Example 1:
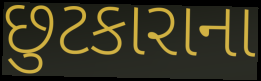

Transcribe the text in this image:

છુટકારાના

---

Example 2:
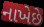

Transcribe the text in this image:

નાખેછે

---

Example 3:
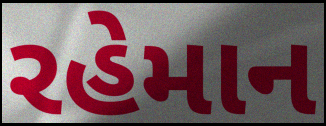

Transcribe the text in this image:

રહેમાન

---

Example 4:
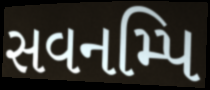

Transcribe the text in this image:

સવનમ્પિ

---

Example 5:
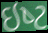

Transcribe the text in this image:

ઇષ્‍ટ